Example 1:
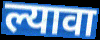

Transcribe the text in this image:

ल्यावा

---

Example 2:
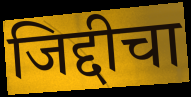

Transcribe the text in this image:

जिद्दीचा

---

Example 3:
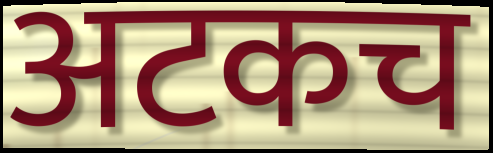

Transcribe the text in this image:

अटकच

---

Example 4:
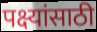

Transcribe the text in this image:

पक्ष्यांसाठी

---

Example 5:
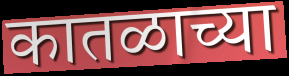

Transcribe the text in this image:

कातळाच्या